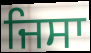
ਜਿਸਾ